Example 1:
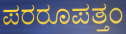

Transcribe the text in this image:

ಪರರೂಪತ್ತಂ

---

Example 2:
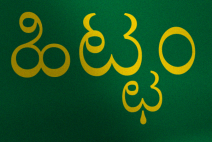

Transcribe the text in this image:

ಹಿಟ್ಟಂ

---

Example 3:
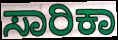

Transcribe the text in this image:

ಸಾರಿಕಾ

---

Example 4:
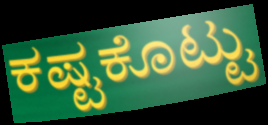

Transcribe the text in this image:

ಕಷ್ಟಕೊಟ್ಟು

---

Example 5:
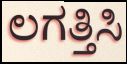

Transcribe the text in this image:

ಲಗತ್ತಿಸಿ